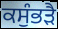
ਕਸੁੰਭੜੈ